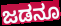
ಜಡನೂ